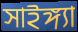
সাইঙ্গ্যা